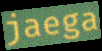
jaega